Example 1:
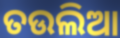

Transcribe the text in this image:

ତଉଲିଆ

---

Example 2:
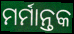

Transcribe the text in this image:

ମର୍ମାନ୍ତକ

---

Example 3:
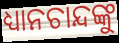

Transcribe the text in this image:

ଧ୍ୟାନଚାନ୍ଦଙ୍କୁ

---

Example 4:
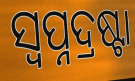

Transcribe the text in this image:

ସ୍ୱପ୍ନଦ୍ରଷ୍ଟା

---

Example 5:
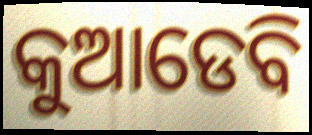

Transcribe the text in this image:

କୁଆଡେବି